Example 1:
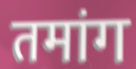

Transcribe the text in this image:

तमांग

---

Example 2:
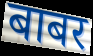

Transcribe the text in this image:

बाबर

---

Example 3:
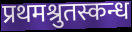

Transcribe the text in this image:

प्रथमश्रुतस्कन्ध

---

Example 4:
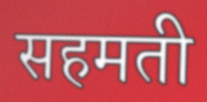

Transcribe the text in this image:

सहमती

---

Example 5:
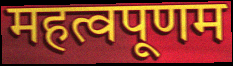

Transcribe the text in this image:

महत्वपूणम